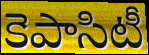
కెపాసిటీ